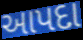
આપદા